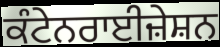
ਕੰਟੇਨਰਾਈਜ਼ੇਸ਼ਨ